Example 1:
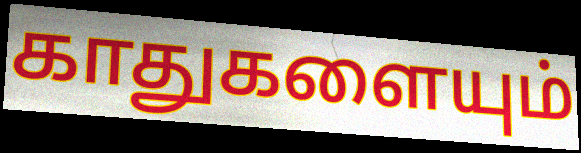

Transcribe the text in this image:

காதுகளையும்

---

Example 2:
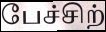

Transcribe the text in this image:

பேச்சிற்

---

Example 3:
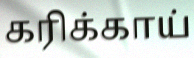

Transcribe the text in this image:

கரிக்காய்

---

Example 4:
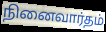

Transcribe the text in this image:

நினைவார்தம்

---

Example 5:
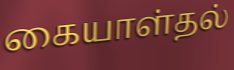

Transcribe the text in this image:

கையாள்தல்